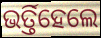
ଭର୍ତ୍ତିହେଲେ